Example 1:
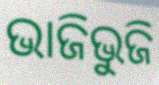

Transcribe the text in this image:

ଭାଜିଭୁଜି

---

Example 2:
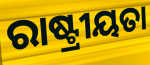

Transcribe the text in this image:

ରାଷ୍ଟ୍ରୀୟତା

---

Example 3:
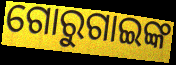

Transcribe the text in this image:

ଗୋରୁଗାଇଙ୍କ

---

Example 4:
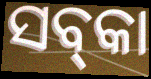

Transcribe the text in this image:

ସବ୍‌କା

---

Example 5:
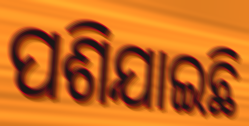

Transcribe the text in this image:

ପଶିଯାଇଛି